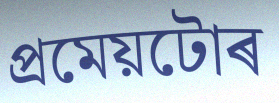
প্ৰমেয়টোৰ